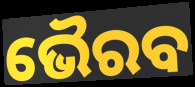
ଭୈରବ